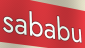
sababu